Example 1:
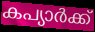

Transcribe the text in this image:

കപ്യാർക്ക്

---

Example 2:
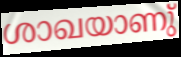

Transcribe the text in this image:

ശാഖയാണു്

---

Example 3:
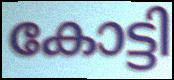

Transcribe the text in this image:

കോട്ടി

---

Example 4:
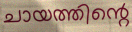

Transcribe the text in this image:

ചായത്തിന്റെ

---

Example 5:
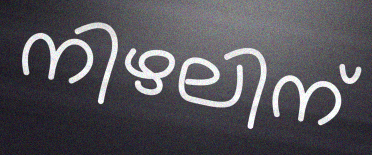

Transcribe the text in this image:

നിഴലിന്